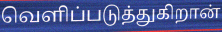
வெளிப்படுத்துகிறான்